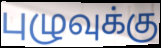
புழுவுக்கு